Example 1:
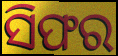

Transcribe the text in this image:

ସିଫର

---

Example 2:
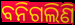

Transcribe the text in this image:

ବନିଗଲିଣି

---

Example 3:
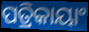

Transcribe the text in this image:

ପତ୍ରିକାୟାଂ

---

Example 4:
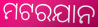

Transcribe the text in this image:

ମଟରଯାନ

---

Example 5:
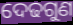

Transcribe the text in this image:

ଦେଢଗୁଣ